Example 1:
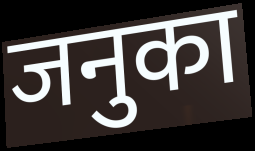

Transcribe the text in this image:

जनुका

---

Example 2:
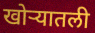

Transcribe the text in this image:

खोऱ्यातली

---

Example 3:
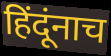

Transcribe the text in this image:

हिंदूंनाच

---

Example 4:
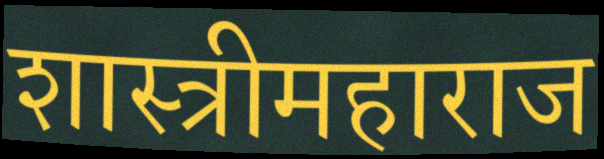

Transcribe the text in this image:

शास्त्रीमहाराज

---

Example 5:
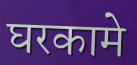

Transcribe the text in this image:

घरकामे